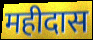
महीदास